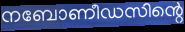
നബോണീഡസിന്റെ